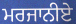
ਮਰਜਾਨੀਏ